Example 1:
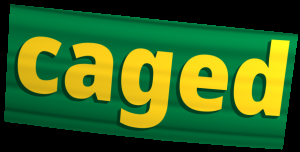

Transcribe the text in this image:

caged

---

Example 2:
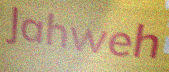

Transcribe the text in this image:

Jahweh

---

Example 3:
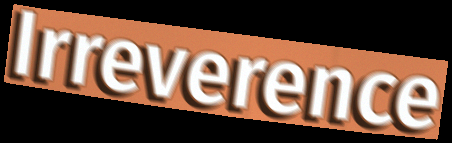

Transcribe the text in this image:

Irreverence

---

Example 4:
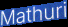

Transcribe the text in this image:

Mathuri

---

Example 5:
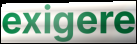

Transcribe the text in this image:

exigere